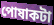
পোষাকটা